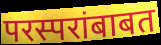
परस्परांबाबत